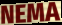
NEMA